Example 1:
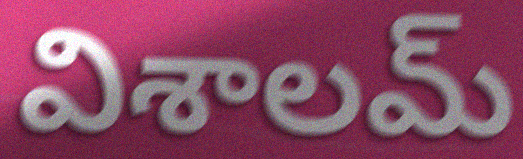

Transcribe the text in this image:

విశాలమ్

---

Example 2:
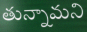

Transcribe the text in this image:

తున్నామని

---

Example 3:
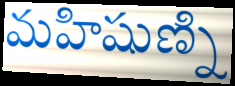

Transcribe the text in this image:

మహిషుణ్ని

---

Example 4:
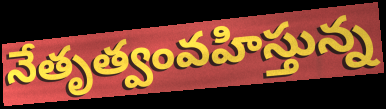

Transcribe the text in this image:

నేతృత్వంవహిస్తున్న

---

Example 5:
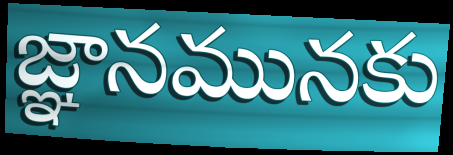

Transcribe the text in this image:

జ్ఞానమునకు